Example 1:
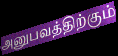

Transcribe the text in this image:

அனுபவத்திற்கும்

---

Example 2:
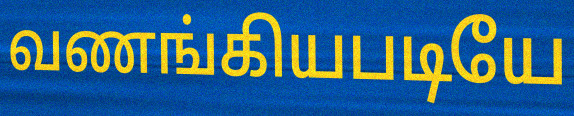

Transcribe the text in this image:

வணங்கியபடியே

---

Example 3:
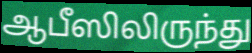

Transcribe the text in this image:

ஆபீஸிலிருந்து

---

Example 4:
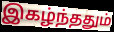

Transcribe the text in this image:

இகழ்ந்ததும்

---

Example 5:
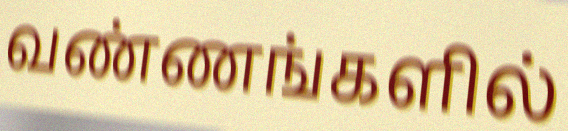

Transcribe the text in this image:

வண்ணங்களில்